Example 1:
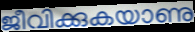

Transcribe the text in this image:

ജീവിക്കുകയാണു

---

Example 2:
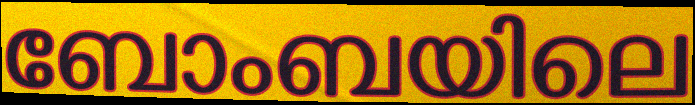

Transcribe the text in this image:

ബോംബയിലെ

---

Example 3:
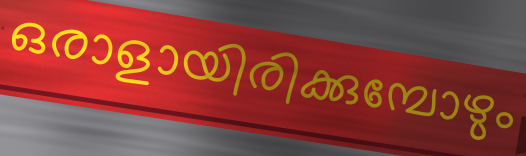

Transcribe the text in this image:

ഒരാളായിരിക്കുമ്പോഴും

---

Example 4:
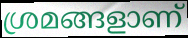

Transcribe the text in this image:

ശ്രമങ്ങളാണ്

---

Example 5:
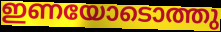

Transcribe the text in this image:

ഇണയോടൊത്തു